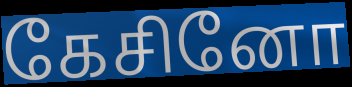
கேசினோ